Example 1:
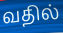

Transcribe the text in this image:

வதில்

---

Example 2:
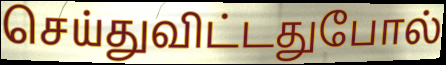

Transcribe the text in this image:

செய்துவிட்டதுபோல்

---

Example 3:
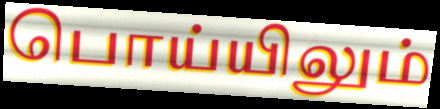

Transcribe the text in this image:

பொய்யிலும்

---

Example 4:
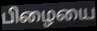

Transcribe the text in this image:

பிழையை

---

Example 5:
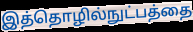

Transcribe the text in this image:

இத்தொழில்நுட்பத்தை